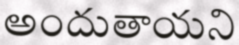
అందుతాయని